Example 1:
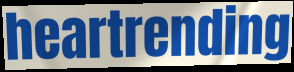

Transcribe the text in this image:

heartrending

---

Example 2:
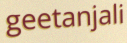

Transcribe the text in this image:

geetanjali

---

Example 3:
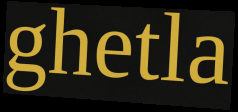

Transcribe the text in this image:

ghetla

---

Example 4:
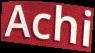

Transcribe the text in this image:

Achi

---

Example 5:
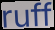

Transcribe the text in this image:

ruff